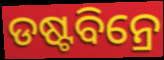
ଡଷ୍ଟବିନ୍ରେ